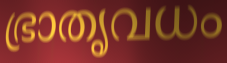
ഭ്രാതൃവധം